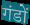
गंडों